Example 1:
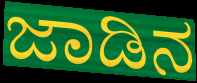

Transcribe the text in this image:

ಜಾಡಿನ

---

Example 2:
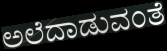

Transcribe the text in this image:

ಅಲೆದಾಡುವಂತೆ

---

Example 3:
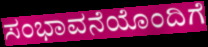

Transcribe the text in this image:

ಸಂಭಾವನೆಯೊಂದಿಗೆ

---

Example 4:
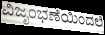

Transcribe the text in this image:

ವಿಜೃಂಭಣೆಯಿಂದಲೆ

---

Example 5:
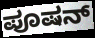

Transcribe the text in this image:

ಪೂಷನ್